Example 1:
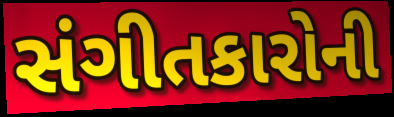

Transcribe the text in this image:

સંગીતકારોની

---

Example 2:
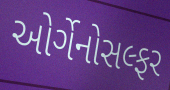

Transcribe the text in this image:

ઓર્ગેનોસલ્ફર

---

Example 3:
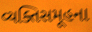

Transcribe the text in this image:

વ્યક્તિસમૂહના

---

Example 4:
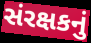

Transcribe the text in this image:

સંરક્ષકનું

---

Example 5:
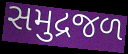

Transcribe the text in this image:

સમુદ્રજળ